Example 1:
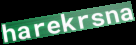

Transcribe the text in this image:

harekrsna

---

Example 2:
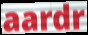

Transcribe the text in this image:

aardr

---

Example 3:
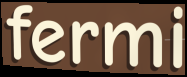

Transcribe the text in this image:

fermi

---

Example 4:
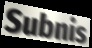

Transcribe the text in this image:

Subnis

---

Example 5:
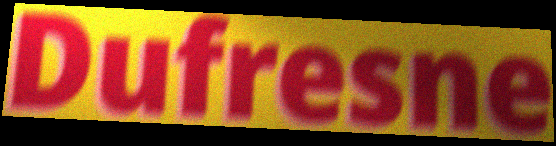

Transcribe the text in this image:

Dufresne